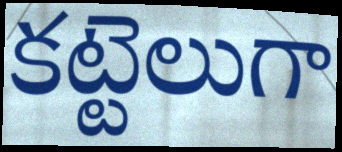
కట్టెలుగా